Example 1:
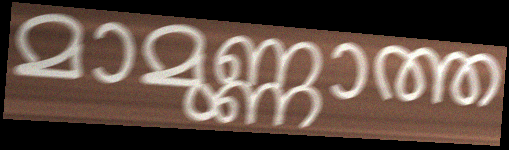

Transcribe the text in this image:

മാമുണ്ണാത്ത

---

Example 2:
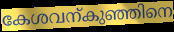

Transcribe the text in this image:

കേശവന്കുഞ്ഞിനെ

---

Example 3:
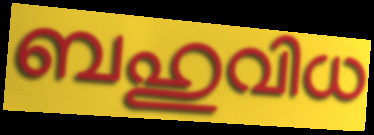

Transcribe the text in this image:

ബഹുവിധ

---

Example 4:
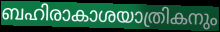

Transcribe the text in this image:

ബഹിരാകാശയാത്രികനും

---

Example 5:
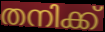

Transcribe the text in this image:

തനിക്ക്